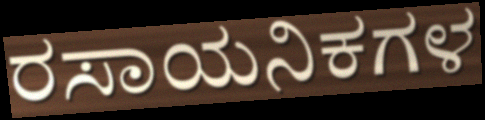
ರಸಾಯನಿಕಗಳ